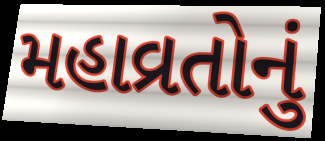
મહાવ્રતોનું